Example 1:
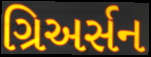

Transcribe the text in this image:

ગ્રિઅર્સન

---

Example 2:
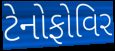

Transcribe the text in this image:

ટેનોફોવિર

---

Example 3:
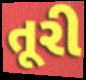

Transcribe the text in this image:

તૂરી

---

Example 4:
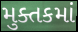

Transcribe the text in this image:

મુક્તકમાં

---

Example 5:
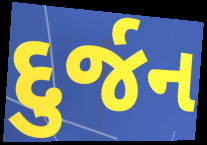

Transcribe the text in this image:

દુર્જન